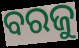
ବରଜୁ